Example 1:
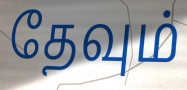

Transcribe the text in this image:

தேவும்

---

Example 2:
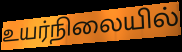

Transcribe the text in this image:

உயர்நிலையில்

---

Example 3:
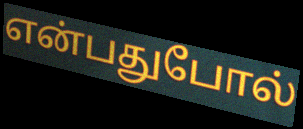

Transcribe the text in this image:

என்பதுபோல்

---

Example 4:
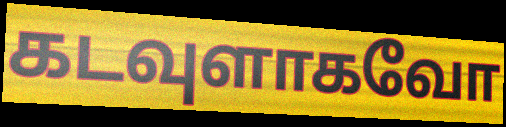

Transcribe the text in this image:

கடவுளாகவோ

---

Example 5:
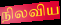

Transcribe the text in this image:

நிலவிய